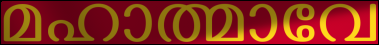
മഹാത്മാവേ